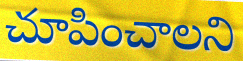
చూపించాలని